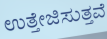
ಉತ್ತೇಜಿಸುತ್ತವೆ